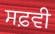
ਸਫ਼ਵੀ